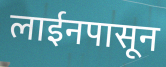
लाईनपासून